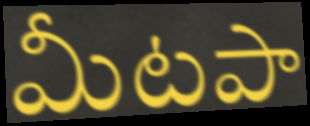
మీటపా